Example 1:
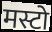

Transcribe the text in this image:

मस्टो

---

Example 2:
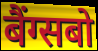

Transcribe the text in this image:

बैंग्सबो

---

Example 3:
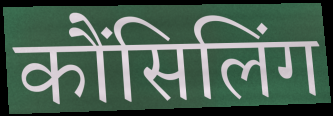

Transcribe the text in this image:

कौंसिलिंग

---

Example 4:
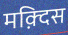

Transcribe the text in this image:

मक़्दिस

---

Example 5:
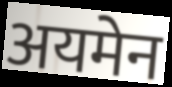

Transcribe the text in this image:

अयमेन